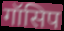
गॉसिप